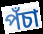
পঁচা